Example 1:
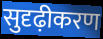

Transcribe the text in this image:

सुदृढ़ीकरण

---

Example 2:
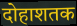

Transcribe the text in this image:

दोहाशतक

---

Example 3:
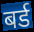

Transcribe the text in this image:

बर्ड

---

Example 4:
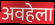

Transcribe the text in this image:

अवहेला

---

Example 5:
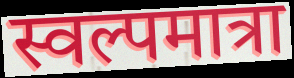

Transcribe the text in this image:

स्वल्पमात्रा